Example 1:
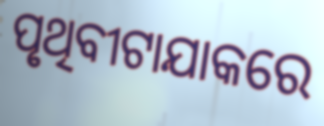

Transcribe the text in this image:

ପୃଥିବୀଟାଯାକରେ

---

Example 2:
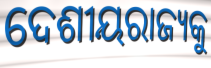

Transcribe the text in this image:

ଦେଶୀୟରାଜ୍ୟକୁ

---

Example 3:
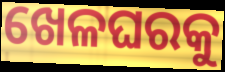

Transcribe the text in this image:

ଖେଳଘରକୁ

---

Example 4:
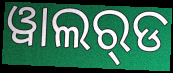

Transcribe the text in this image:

ୱାଲର୍‌ଡ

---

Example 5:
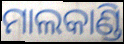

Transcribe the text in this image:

ମାଲକାଣ୍ଡି